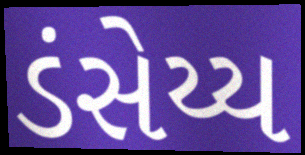
ડંસેય્ય